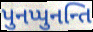
પુનપ્પુનન્તિ